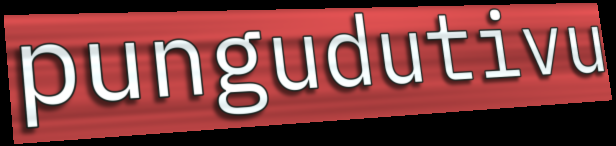
pungudutivu